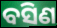
ବସିଣ